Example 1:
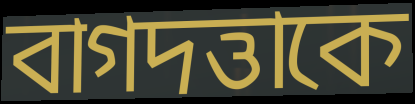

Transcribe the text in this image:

বাগদত্তাকে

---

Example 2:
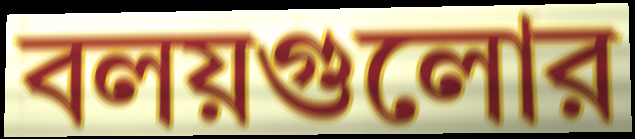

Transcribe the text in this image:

বলয়গুলোর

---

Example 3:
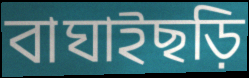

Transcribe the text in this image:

বাঘাইছড়ি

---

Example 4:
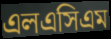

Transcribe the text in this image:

এলএসিএম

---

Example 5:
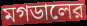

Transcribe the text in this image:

মগডালের